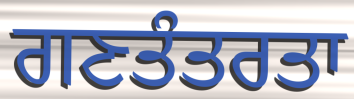
ਗਣਤੰਤਰਤਾ